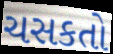
ચસકતો